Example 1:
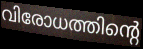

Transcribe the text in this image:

വിരോധത്തിന്റെ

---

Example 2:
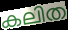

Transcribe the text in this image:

കലിത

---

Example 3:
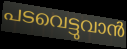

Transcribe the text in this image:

പടവെട്ടുവാൻ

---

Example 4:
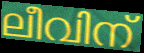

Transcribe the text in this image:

ലീവിന്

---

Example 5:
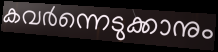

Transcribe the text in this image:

കവർന്നെടുക്കാനും